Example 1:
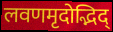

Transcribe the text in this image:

लवणमृदोद्भिद्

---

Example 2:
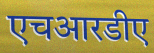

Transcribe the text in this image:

एचआरडीए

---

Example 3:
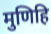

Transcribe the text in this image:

मुणिहि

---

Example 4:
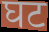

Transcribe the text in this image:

घट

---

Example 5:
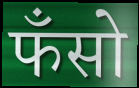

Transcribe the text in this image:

फँसो